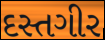
દસ્તગીર